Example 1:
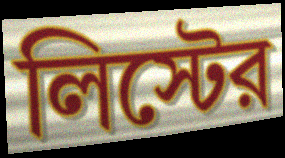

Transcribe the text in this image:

লিস্টের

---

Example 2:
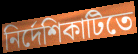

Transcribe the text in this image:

নির্দেশিকাটিতে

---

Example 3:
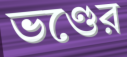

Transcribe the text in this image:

ভণ্ডের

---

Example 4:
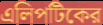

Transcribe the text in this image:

এলিপটিকের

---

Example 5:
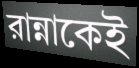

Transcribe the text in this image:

রান্নাকেই